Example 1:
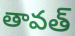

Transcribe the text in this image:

తావత్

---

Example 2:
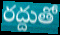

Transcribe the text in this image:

రద్దుతో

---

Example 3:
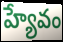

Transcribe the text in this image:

హ్యేవం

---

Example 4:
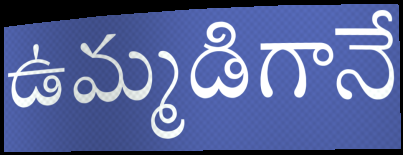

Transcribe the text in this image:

ఉమ్మడిగానే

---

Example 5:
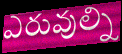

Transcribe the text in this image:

ఎరువుల్ని